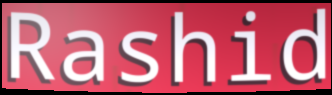
Rashid